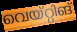
വെയ്റ്റിങ്